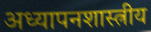
अध्यापनशास्त्रीय